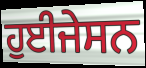
ਹੁਈਜੇਸਨ